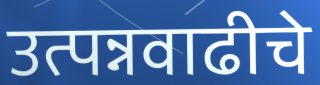
उत्पन्नवाढीचे